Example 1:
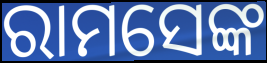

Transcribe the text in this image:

ରାମସେଙ୍କ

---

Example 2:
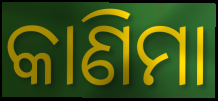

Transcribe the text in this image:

କାଣିମା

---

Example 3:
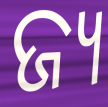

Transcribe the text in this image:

ଜ୍ୟ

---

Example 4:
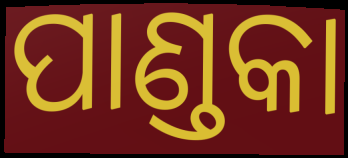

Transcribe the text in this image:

ପାଣ୍ଡକା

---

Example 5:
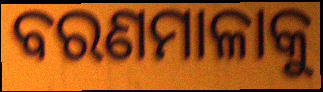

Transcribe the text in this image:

ବରଣମାଳାକୁ